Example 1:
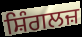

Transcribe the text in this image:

ਸ਼ਿੰਗਲਜ਼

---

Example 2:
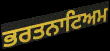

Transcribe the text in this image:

ਭਰਤਨਾਟਿਅਮ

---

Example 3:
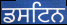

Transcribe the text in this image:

ਡਸਟਿਨ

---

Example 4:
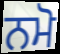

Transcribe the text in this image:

ਨਮੋ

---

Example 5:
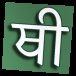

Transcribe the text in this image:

ਥੀ